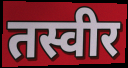
तस्वीर